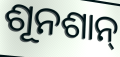
ଶୂନଶାନ୍